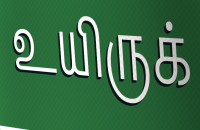
உயிருக்